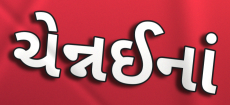
ચેન્નઈનાં